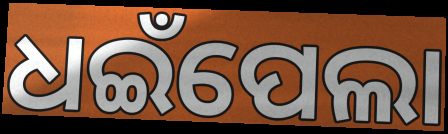
ଧଇଁପେଲା